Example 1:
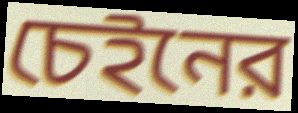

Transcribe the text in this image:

চেইনের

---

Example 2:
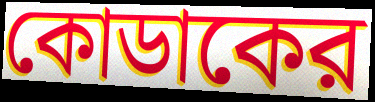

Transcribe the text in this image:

কোডাকের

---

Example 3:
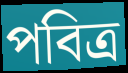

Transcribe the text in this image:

পবিত্র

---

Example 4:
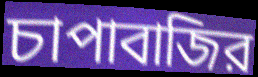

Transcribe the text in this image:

চাপাবাজির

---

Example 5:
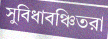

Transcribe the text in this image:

সুবিধাবঞ্চিতরা